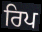
ਰਿਪ